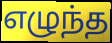
எழுந்த